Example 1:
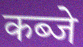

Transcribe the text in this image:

कब्‍जे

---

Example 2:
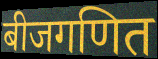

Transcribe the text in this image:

बीजगणित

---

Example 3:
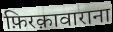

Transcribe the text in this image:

फ़िरक़ावाराना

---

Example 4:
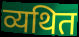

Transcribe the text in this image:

व्यथित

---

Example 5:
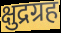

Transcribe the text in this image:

क्षुद्रग्रह